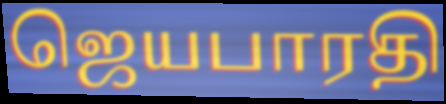
ஜெயபாரதி